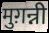
मुग़न्नी